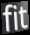
fit